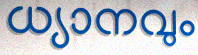
ധ്യാനവും